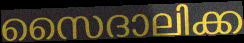
സൈദാലിക്ക